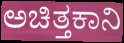
ಅಚಿತ್ತಕಾನಿ